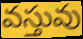
వస్తువు